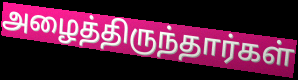
அழைத்திருந்தார்கள்